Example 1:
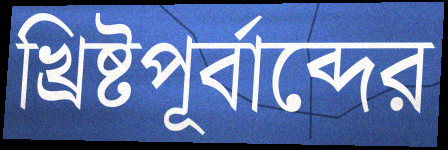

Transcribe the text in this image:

খ্রিষ্টপূর্বাব্দের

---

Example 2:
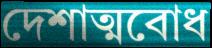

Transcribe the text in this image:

দেশাত্মবোধ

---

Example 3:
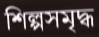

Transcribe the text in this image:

শিল্পসমৃদ্ধ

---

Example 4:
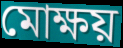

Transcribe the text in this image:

মোক্ষয়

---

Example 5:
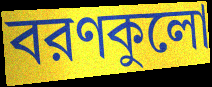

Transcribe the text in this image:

বরণকুলো